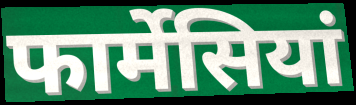
फार्मेसियां